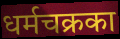
धर्मचक्रका